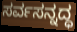
ಸರ್ವಸನ್ನದ್ಧ